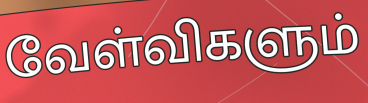
வேள்விகளும்